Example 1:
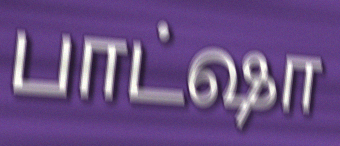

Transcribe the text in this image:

பாட்ஷா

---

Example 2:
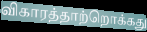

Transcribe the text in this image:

விகாரத்தாற்றொக்கது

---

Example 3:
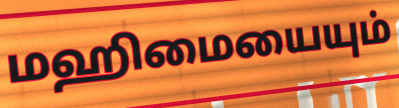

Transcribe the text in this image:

மஹிமையையும்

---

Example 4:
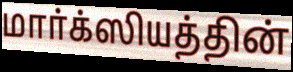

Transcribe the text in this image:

மார்க்ஸியத்தின்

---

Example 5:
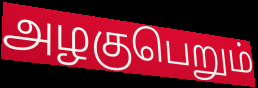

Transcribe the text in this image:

அழகுபெறும்